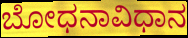
ಬೋಧನಾವಿಧಾನ